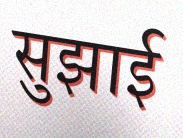
सुझाई